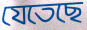
যেতেছে